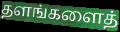
தளங்களைத்